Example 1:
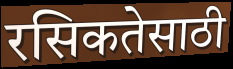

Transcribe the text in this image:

रसिकतेसाठी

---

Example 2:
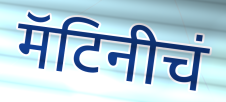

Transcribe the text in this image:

मॅटिनीचं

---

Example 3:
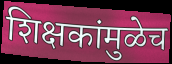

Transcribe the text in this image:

शिक्षकांमुळेच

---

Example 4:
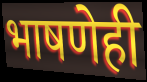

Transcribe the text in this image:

भाषणेही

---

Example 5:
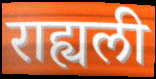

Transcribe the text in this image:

राह्यली